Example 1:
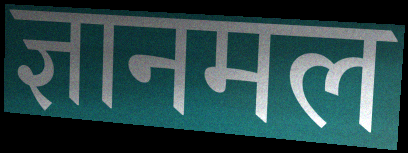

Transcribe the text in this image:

ज्ञानमल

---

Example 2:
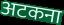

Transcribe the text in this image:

अटकना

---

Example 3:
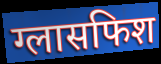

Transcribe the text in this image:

ग्लासफिश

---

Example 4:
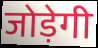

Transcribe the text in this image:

जोड़ेगी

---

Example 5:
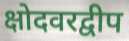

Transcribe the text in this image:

क्षोदवरद्वीप